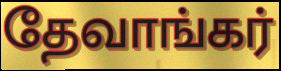
தேவாங்கர்